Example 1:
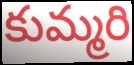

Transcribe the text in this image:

కుమ్మరి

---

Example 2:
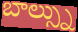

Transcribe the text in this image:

బాల్స్ను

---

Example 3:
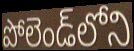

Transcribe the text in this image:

పోలెండ్‌లోని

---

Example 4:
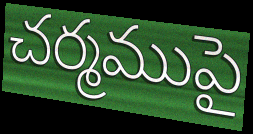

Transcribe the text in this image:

చర్మముపై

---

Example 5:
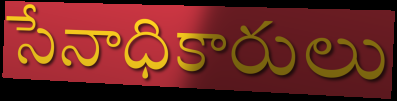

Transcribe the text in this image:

సేనాధికారులు